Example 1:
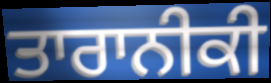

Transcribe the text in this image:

ਤਾਰਾਨੀਕੀ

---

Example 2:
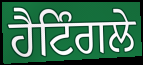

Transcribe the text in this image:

ਹੈਟਿੰਗਲੇ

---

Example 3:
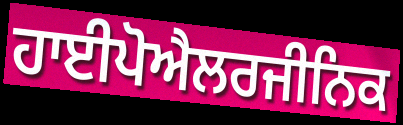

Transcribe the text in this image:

ਹਾਈਪੋਐਲਰਜੀਨਿਕ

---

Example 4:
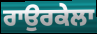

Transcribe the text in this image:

ਰਾਉਰਕੇਲਾ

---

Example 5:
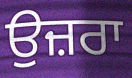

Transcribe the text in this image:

ਉਜ਼ਰਾ